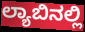
ಲ್ಯಾಬಿನಲ್ಲಿ